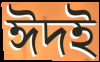
ঈদই